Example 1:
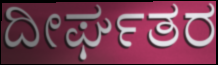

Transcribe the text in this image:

ದೀರ್ಘತರ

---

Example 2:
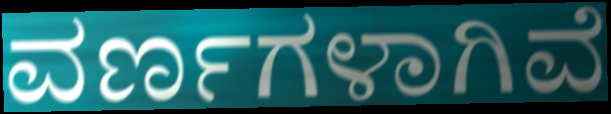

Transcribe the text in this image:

ವರ್ಣಗಳಾಗಿವೆ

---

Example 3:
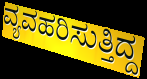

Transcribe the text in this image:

ವ್ಯವಹರಿಸುತ್ತಿದ್ದ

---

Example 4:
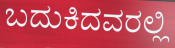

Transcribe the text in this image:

ಬದುಕಿದವರಲ್ಲಿ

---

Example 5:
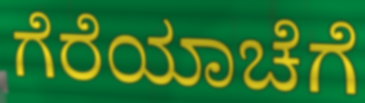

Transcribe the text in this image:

ಗೆರೆಯಾಚೆಗೆ